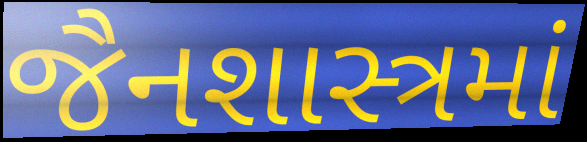
જૈનશાસ્ત્રમાં